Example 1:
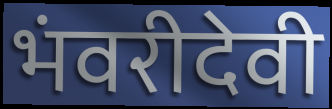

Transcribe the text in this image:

भंवरीदेवी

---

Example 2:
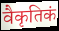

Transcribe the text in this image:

वैकृतिकं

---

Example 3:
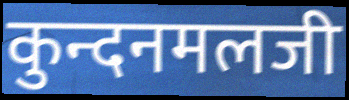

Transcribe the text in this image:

कुन्दनमलजी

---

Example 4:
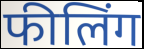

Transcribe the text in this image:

फीलिंग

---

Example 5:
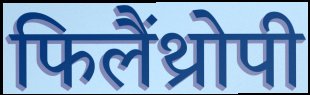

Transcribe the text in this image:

फिलैंथ्रोपी